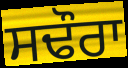
ਸਢੌਰਾ